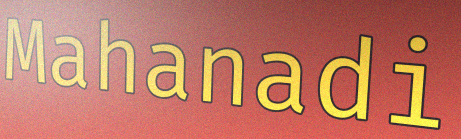
Mahanadi